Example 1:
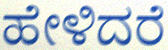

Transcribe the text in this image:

ಹೇಳಿದರೆ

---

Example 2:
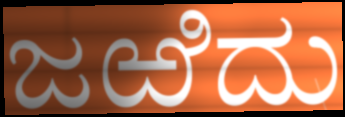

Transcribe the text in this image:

ಜಱಿದು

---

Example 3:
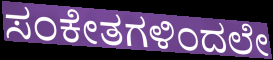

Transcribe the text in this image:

ಸಂಕೇತಗಳಿಂದಲೇ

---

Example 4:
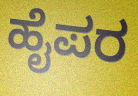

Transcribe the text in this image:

ಹೈಪರ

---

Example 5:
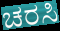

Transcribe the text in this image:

ಚರಸಿ